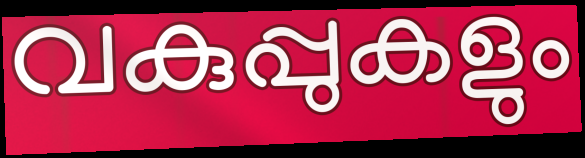
വകുപ്പുകളും